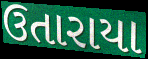
ઉતારાયા